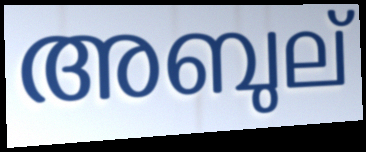
അബുല്